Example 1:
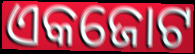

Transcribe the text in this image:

ଏକଜୋଟ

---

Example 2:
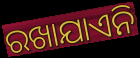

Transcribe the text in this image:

ରଖାଯାଏନି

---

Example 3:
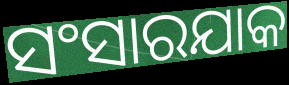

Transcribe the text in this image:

ସଂସାରଯାକ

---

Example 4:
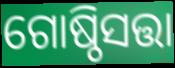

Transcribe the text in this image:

ଗୋଷ୍ଠିସତ୍ତା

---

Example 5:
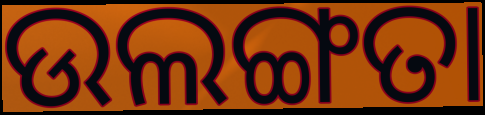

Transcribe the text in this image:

ଉଲଙ୍ଗତା